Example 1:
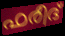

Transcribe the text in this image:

ഫരീദ്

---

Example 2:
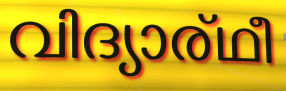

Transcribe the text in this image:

വിദ്യാര്ഥീ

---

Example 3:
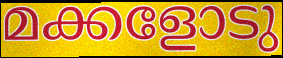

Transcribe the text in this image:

മക്കളോടു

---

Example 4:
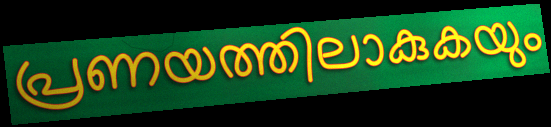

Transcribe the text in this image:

പ്രണയത്തിലാകുകയും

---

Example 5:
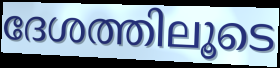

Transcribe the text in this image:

ദേശത്തിലൂടെ